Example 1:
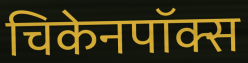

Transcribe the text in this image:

चिकेनपॉक्स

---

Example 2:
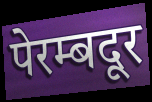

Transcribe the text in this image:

पेरम्बदूर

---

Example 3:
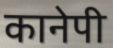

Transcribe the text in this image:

कानेपी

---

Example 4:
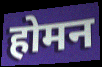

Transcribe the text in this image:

होमन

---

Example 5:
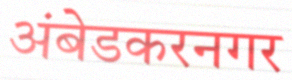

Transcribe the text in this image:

अंबेडकरनगर